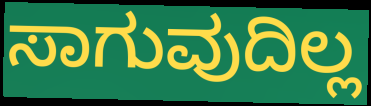
ಸಾಗುವುದಿಲ್ಲ